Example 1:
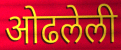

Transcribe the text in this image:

ओढलेली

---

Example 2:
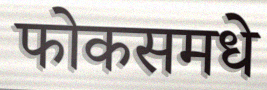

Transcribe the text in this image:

फोकसमधे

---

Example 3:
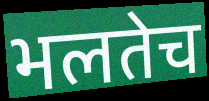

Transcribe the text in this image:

भलतेच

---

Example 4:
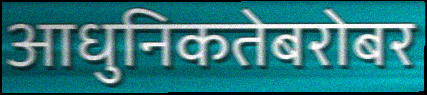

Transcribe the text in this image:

आधुनिकतेबरोबर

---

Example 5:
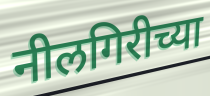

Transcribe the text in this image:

नीलगिरीच्या